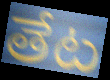
తేట